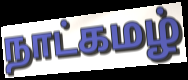
நாட்கமழ்